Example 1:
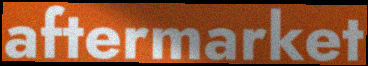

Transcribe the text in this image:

aftermarket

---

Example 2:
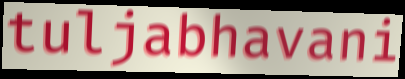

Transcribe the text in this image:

tuljabhavani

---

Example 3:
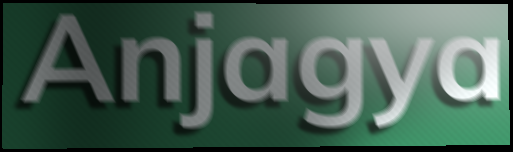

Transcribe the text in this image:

Anjagya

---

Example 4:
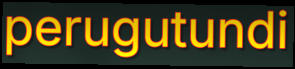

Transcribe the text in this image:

perugutundi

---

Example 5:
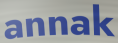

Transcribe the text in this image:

annak